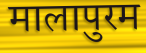
मालापुरम